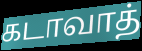
கடாவாத்